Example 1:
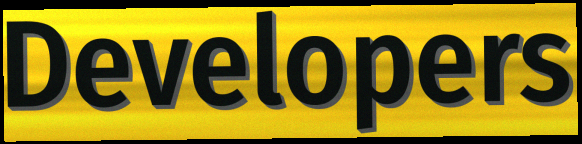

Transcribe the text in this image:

Developers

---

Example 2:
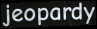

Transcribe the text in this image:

jeopardy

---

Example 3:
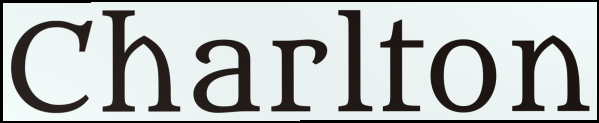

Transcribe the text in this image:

Charlton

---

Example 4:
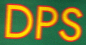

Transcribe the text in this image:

DPS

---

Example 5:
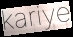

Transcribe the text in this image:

kariye